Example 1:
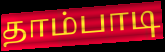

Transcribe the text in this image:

தாம்பாடி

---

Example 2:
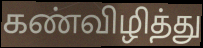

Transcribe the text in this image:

கண்விழித்து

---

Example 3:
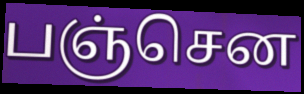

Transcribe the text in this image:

பஞ்சென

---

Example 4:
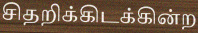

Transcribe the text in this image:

சிதறிக்கிடக்கின்ற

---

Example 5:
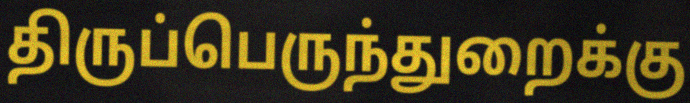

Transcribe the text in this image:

திருப்பெருந்துறைக்கு